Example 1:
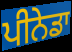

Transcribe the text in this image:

ਪੀਨੇਡਾ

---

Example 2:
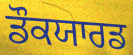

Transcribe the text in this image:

ਡੌਕਯਾਰਡ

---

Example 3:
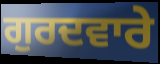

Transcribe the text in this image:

ਗੁਰਦਵਾਰੇ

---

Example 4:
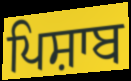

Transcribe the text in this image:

ਪਿਸ਼ਾਬ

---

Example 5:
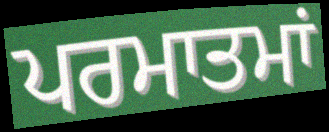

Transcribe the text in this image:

ਪਰਮਾਤਮਾਂ